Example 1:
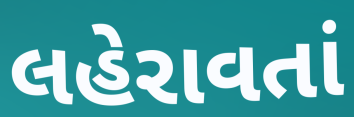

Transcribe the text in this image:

લહેરાવતાં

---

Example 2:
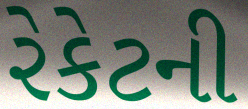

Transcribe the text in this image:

રેકેટની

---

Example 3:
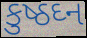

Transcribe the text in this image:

કુષ્ઠઘ્ન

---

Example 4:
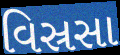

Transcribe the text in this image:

વિસ્રસા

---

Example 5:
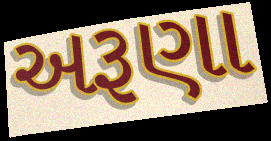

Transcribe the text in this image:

અરૂણા